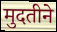
मुदतीने